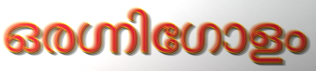
ഒരഗ്നിഗോളം